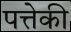
पत्तेकी